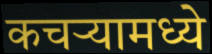
कचऱ्यामध्ये